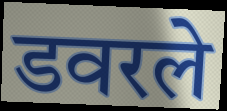
डवरले